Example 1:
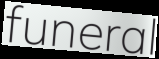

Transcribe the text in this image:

funeral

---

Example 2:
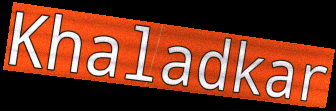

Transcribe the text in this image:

Khaladkar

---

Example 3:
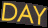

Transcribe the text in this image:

DAY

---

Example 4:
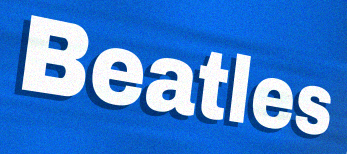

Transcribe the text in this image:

Beatles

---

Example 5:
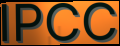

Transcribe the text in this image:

IPCC